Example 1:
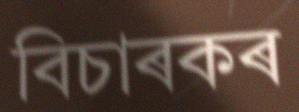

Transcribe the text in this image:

বিচাৰকৰ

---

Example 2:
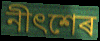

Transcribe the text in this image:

নীৎশেৰ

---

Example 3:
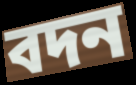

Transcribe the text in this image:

বদন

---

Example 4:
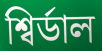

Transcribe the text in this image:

শ্বিৰ্ডাল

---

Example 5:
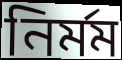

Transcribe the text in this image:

নিৰ্মম